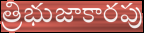
త్రిభుజాకారపు